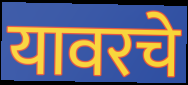
यावरचे